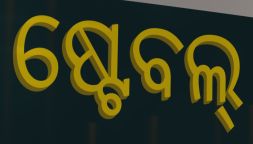
ଷ୍ଟେବଲ୍